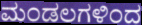
ಮಂಡಲಗಳಿಂದ